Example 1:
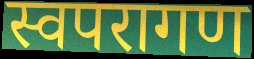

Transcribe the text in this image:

स्वपरागण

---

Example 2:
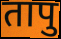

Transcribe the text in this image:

तापु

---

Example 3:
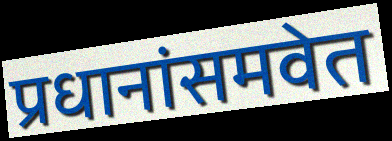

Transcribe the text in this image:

प्रधानांसमवेत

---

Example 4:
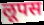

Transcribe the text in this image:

लूपस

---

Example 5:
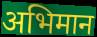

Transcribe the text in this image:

अभिमान